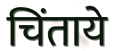
चिंताये